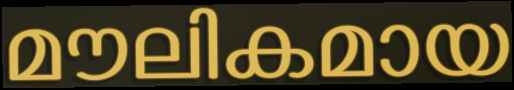
മൗലികമായ